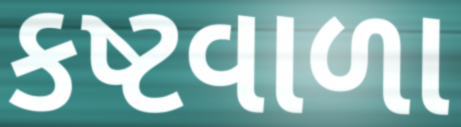
કષ્ટવાળા